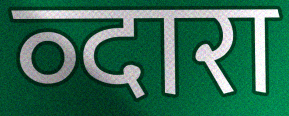
व्दारा